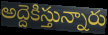
అద్దెకిస్తున్నారు